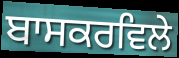
ਬਾਸਕਰਵਿਲੇ